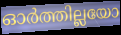
ഓർത്തില്ലയോ